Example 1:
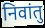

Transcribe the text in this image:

निवांतु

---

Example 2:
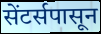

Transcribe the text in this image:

सेंटर्सपासून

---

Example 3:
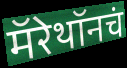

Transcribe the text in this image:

मॅरेथॉनचं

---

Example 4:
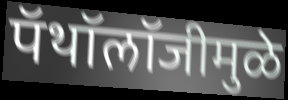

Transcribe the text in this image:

पॅथॉलॉजीमुळे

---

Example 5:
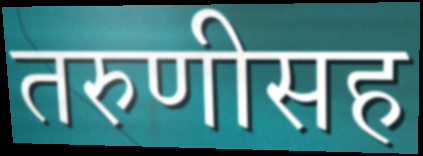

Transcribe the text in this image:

तरुणीसह